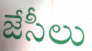
జేసీలు